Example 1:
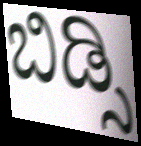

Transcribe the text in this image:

ಬಿಡ್ಸಿ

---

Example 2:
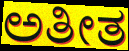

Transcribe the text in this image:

ಅತೀತ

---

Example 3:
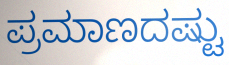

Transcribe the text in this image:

ಪ್ರಮಾಣದಷ್ಟು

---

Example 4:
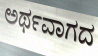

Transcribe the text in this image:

ಅರ್ಥವಾಗದ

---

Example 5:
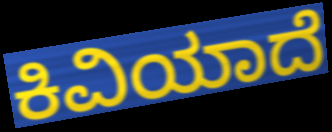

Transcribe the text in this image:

ಕಿವಿಯಾದೆ